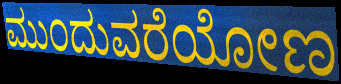
ಮುಂದುವರೆಯೋಣ